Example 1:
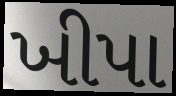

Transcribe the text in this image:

ખીપા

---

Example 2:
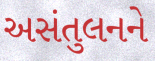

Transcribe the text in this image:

અસંતુલનને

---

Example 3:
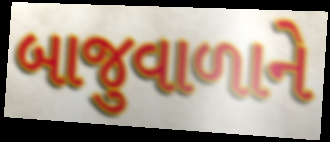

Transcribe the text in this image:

બાજુવાળાને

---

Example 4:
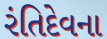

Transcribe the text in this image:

રંતિદેવના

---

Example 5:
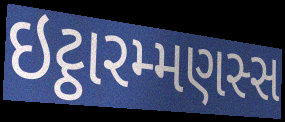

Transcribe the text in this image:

ઇટ્ઠારમ્મણસ્સ